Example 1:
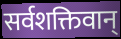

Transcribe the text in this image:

सर्वशक्तिवान्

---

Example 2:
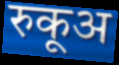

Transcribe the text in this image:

रुकूअ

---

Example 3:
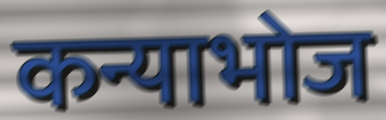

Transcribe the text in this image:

कन्याभोज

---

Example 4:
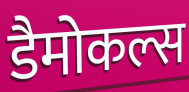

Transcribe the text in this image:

डैमोकल्स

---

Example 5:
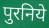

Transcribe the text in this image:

पुरनिये